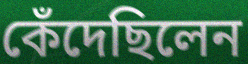
কেঁদেছিলেন